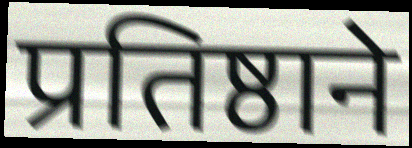
प्रतिष्ठाने